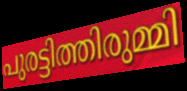
പുരട്ടിത്തിരുമ്മി